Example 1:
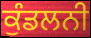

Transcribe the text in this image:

ਕੁੰਡਲਨੀ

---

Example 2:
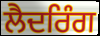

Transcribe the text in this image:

ਲੈਦਰਿੰਗ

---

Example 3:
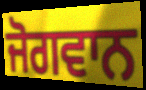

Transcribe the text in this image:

ਜੋਗਵਾਨ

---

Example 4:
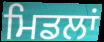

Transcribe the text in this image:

ਮਿਡਲਾਂ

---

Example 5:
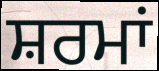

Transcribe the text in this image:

ਸ਼ਰਮਾਂ